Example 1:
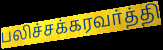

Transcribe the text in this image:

பலிச்சக்கரவர்த்தி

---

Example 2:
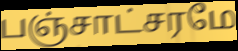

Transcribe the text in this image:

பஞ்சாட்சரமே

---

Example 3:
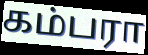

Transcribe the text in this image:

கம்பரா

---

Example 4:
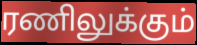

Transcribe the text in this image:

ரணிலுக்கும்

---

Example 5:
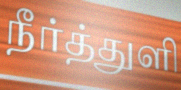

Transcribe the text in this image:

நீர்த்துளி